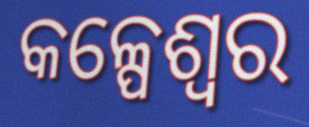
କଳ୍ପେଶ୍ୱର